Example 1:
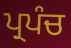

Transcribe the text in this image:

ਪ੍ਰਪੰਚ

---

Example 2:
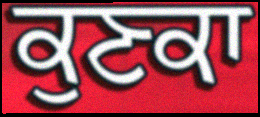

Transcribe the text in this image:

ਕੁਣਕਾ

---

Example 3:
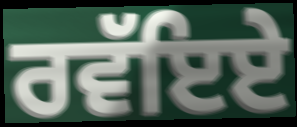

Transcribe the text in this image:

ਰਵੱਇਏ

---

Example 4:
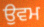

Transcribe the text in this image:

ਉਵਮ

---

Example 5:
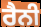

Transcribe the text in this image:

ਰੈਨੀ